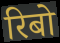
रिबो